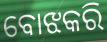
ବୋଝକରି